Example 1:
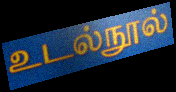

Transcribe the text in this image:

உடல்நூல்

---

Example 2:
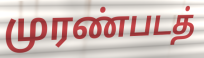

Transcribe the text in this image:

முரண்படத்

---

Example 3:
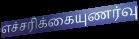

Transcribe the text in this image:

எச்சரிக்கையுணர்வு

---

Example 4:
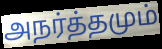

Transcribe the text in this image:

அநர்த்தமும்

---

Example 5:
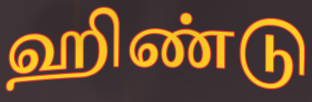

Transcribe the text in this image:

ஹிண்டு